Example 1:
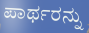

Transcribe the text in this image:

ಪಾರ್ಥರನ್ನು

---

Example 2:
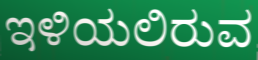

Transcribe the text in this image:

ಇಳಿಯಲಿರುವ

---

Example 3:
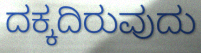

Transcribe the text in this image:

ದಕ್ಕದಿರುವುದು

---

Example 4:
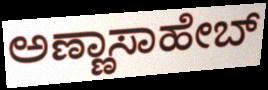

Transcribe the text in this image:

ಅಣ್ಣಾಸಾಹೇಬ್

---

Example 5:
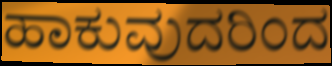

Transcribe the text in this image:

ಹಾಕುವುದರಿಂದ